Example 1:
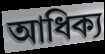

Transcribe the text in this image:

আধিক্য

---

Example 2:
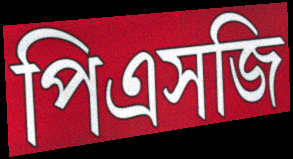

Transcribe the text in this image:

পিএসজি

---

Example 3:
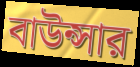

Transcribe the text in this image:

বাউন্সার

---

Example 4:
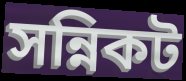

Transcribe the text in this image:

সন্নিকট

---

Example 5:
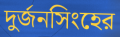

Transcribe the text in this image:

দুর্জনসিংহের